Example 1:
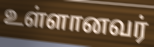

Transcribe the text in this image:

உள்ளானவர்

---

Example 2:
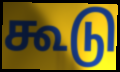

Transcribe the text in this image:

கூடு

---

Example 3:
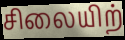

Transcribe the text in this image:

சிலையிற்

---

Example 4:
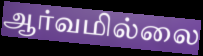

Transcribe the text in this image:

ஆர்வமில்லை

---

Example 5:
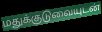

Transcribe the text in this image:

மதுக்குடுவையுடன்